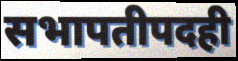
सभापतीपदही